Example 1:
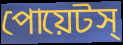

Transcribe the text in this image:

পোয়েটস্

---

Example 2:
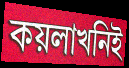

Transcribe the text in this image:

কয়লাখনিই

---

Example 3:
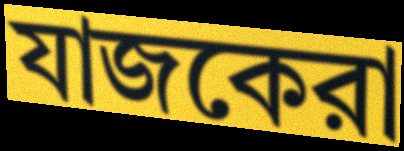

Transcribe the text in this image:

যাজকেরা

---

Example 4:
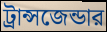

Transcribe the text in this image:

ট্রান্সজেন্ডার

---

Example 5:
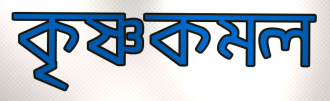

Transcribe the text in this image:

কৃষ্ণকমল